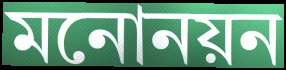
মনোনয়ন